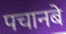
पचानबे